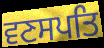
ਵਣਸਪਤਿ